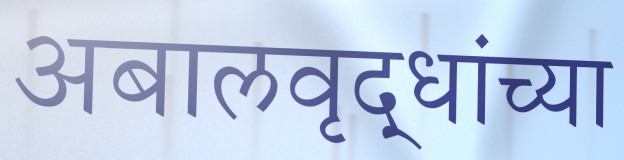
अबालवृद्धांच्या